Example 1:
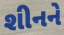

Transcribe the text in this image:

શીનને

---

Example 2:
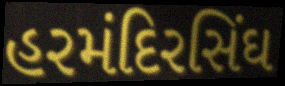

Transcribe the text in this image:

હરમંદિરસિંઘ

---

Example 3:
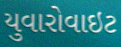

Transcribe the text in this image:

યુવારોવાઇટ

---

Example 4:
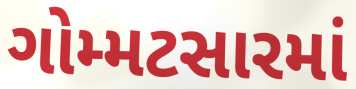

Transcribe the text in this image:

ગોમ્મટસારમાં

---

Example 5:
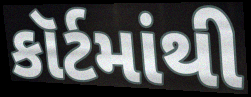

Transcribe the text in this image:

કૉર્ટમાંથી